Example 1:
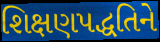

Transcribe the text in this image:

શિક્ષણપદ્ધતિને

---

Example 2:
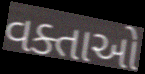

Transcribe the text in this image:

વક્તાઓ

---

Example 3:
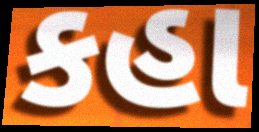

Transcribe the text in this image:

કહા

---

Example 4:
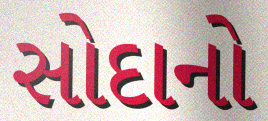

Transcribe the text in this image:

સોદાનો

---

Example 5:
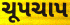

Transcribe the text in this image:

ચૂપચાપ